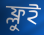
ফ্লুই